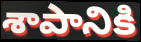
శాపానికి